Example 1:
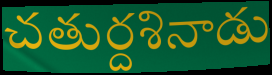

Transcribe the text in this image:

చతుర్దశినాడు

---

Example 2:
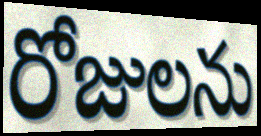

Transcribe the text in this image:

రోజులను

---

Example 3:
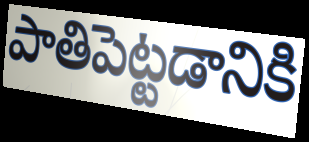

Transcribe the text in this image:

పాతిపెట్టడానికి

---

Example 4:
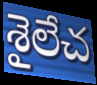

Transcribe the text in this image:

శైలేచ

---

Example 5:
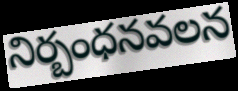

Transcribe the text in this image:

నిర్బంధనవలన